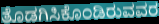
ತೊಡಗಿಸಿಕೊಂಡಿರುವವರ